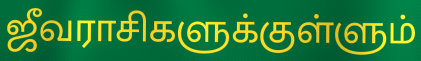
ஜீவராசிகளுக்குள்ளும்